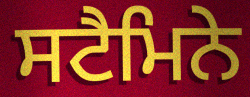
ਸਟੈਮਿਨੇ